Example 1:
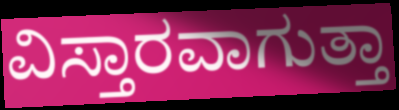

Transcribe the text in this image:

ವಿಸ್ತಾರವಾಗುತ್ತಾ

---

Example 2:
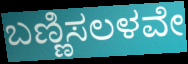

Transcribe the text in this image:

ಬಣ್ಣಿಸಲಳವೇ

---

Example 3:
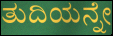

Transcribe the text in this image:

ತುದಿಯನ್ನೇ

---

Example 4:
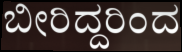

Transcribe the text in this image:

ಬೀರಿದ್ದರಿಂದ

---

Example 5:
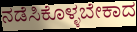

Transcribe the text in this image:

ನಡೆಸಿಕೊಳ್ಳಬೇಕಾದ